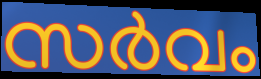
സർവം